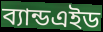
ব্যান্ডএইড